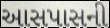
આસપાસની